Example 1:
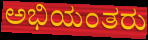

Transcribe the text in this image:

ಅಭಿಯಂತರು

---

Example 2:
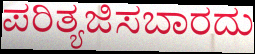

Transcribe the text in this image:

ಪರಿತ್ಯಜಿಸಬಾರದು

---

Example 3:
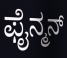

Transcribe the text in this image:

ಫೈನ್ಮನ್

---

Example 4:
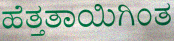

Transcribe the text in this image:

ಹೆತ್ತತಾಯಿಗಿಂತ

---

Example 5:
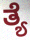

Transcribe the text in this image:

ತ್ಯೆ